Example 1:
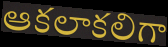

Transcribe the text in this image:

ఆకలాకలిగా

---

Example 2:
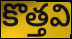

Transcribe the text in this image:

కొత్తవి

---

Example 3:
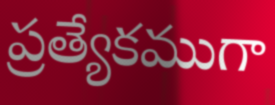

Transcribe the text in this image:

ప్రత్యేకముగా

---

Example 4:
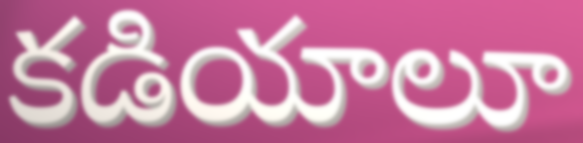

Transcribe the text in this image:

కడియాలూ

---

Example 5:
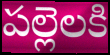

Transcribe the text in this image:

పల్లెలకి